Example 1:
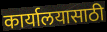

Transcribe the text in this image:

कार्यालयासाठी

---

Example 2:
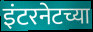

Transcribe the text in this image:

इंटरनेटच्या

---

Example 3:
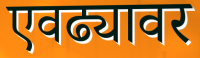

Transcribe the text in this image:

एवढ्यावर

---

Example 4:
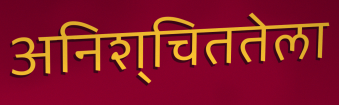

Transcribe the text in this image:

अनिश्चिततेला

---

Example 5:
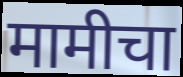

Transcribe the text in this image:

मामीचा